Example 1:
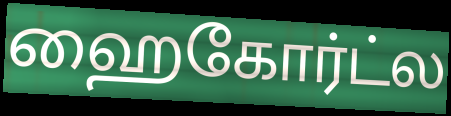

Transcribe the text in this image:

ஹைகோர்ட்ல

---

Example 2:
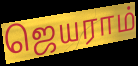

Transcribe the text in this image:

ஜெயராம்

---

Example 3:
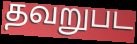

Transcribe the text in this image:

தவறுபட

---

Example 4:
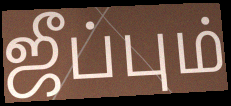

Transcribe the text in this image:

ஜீப்பும்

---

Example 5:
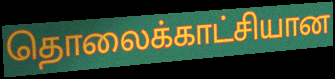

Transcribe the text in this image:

தொலைக்காட்சியான